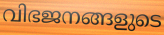
വിഭജനങ്ങളുടെ